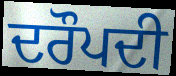
ਦਰੌਪਦੀ